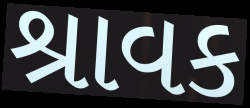
શ્રાવક